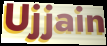
Ujjain